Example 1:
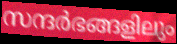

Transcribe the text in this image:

സന്ദർഭങ്ങളിലും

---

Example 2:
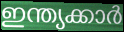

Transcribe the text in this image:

ഇന്ത്യക്കാർ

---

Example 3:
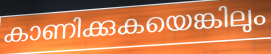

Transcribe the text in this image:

കാണിക്കുകയെങ്കിലും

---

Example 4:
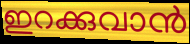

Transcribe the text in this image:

ഇറക്കുവാൻ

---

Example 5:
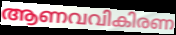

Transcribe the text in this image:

ആണവവികിരണ